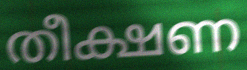
തീക്ഷണ